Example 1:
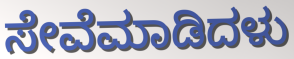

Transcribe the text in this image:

ಸೇವೆಮಾಡಿದಳು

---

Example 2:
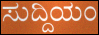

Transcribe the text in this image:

ಸುದ್ದಿಯಂ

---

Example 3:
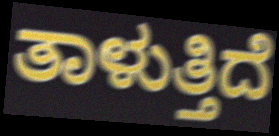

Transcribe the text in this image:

ತಾಳುತ್ತಿದೆ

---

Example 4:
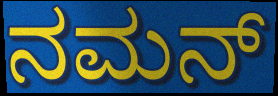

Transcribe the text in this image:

ನಮನ್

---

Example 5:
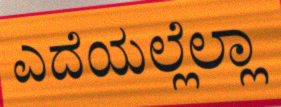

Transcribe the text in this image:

ಎದೆಯಲ್ಲೆಲ್ಲಾ